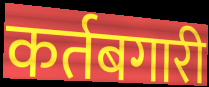
कर्तबगारी